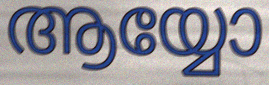
ആയ്യോ